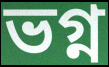
ভগ্ন